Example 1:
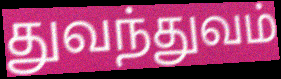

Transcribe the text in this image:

துவந்துவம்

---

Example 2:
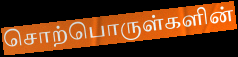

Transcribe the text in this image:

சொற்பொருள்களின்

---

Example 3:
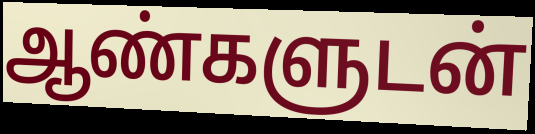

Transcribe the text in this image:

ஆண்களுடன்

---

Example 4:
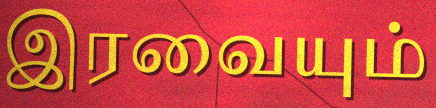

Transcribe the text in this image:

இரவையும்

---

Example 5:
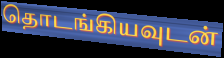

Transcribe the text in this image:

தொடங்கியவுடன்